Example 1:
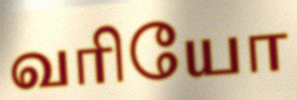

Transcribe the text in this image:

வரியோ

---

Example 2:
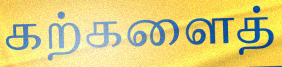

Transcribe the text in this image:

கற்களைத்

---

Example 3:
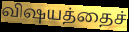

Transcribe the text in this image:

விஷயத்தைச்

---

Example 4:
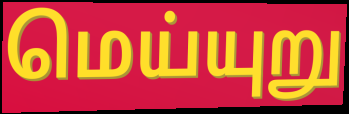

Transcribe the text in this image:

மெய்யுறு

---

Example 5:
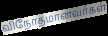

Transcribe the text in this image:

விநோதமானவர்கள்